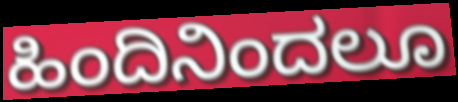
ಹಿಂದಿನಿಂದಲೂ